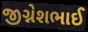
જીગ્નેશભાઈ